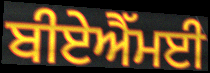
ਬੀਏਐੱਮਈ